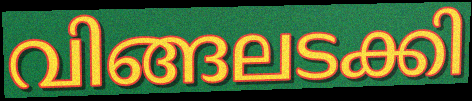
വിങ്ങലടക്കി